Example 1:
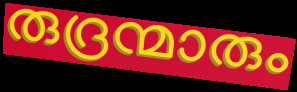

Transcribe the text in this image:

രുദ്രന്മാരും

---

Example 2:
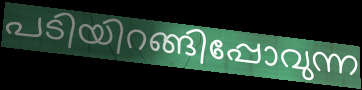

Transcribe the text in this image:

പടിയിറങ്ങിപ്പോവുന്ന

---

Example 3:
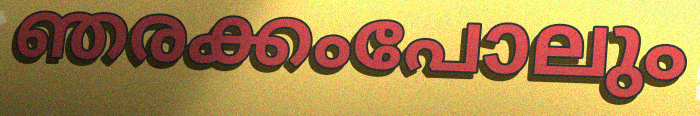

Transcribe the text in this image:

ഞരക്കംപോലും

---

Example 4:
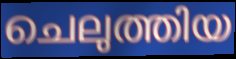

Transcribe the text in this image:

ചെലുത്തിയ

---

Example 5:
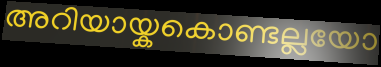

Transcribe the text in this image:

അറിയായ്കകൊണ്ടല്ലയോ